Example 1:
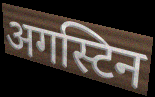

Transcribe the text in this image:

अगस्टिन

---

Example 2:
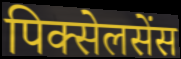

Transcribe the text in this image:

पिक्सेलसेंस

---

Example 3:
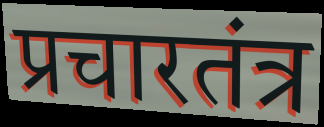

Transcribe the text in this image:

प्रचारतंत्र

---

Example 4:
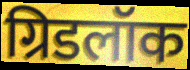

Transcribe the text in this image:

ग्रिडलॉक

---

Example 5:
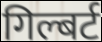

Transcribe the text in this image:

गिल्बर्ट